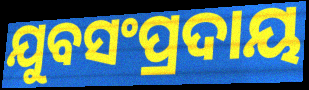
ଯୁବସଂପ୍ରଦାୟ